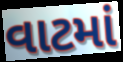
વાટમાં